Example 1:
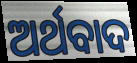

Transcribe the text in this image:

ଅର୍ଥବାଦ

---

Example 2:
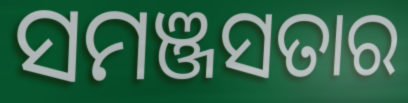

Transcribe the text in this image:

ସମଞ୍ଜସତାର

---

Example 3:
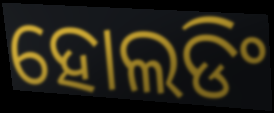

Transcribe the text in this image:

ହୋଲଡିଂ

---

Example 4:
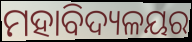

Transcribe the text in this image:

ମହାବିଦ୍ୟଳୟର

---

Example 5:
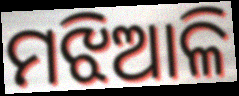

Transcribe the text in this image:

ମଝିଆଳି